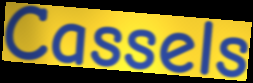
Cassels